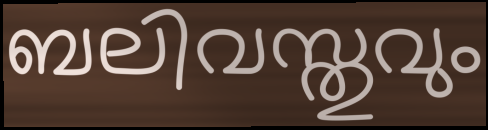
ബലിവസ്തുവും